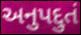
અનુપદ્દુતં